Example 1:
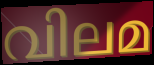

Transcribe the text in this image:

വിലമ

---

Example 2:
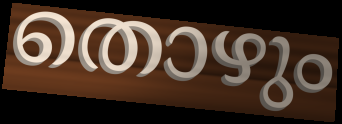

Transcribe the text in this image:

തൊഴും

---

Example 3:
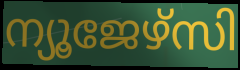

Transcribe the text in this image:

ന്യൂജേഴ്സി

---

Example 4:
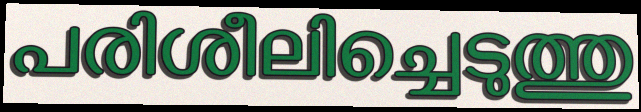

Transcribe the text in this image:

പരിശീലിച്ചെടുത്തു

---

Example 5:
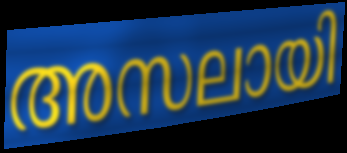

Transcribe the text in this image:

അസലായി